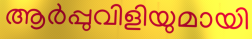
ആർപ്പുവിളിയുമായി